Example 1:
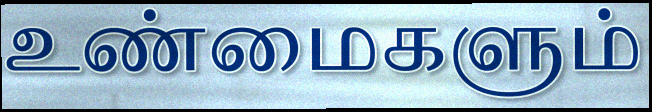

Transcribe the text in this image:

உண்மைகளும்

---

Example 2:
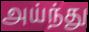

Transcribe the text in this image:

அய்ந்து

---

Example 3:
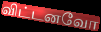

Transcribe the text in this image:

விட்டனவோ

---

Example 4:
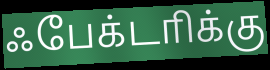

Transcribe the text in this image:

ஃபேக்டரிக்கு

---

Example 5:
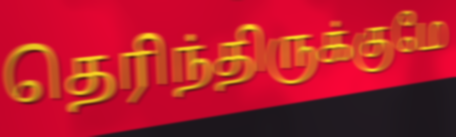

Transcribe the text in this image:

தெரிந்திருக்குமே